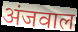
अंजवाल